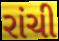
રાંચી